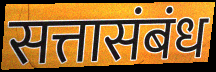
सत्तासंबंध